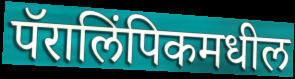
पॅरालिंपिकमधील